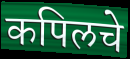
कपिलचे